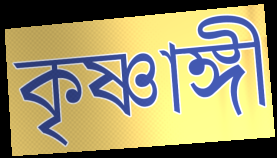
কৃষ্ণাঙ্গী